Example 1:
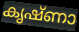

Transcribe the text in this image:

കൃഷ്ണാ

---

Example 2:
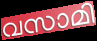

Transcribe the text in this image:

വസാമി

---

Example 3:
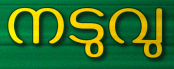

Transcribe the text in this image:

നടുവു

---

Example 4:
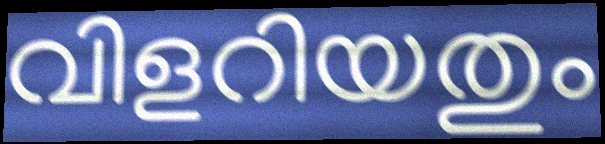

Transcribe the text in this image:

വിളറിയതും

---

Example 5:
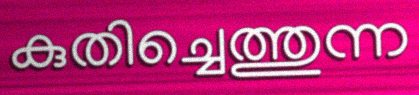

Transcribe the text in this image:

കുതിച്ചെത്തുന്ന